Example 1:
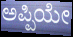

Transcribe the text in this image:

ಅಪ್ಪಿಯೇ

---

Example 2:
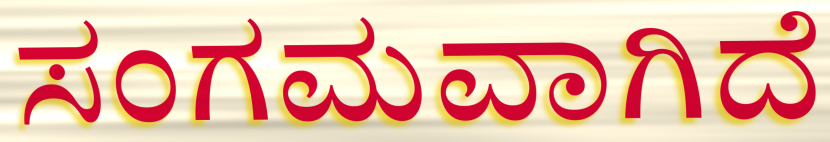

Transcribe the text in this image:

ಸಂಗಮವಾಗಿದೆ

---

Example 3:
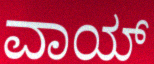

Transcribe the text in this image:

ವಾಯ್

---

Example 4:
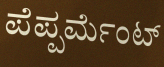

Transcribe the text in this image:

ಪೆಪ್ಪರ್ಮೆಂಟ್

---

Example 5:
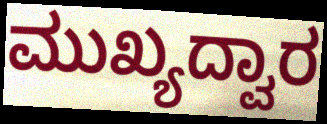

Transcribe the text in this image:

ಮುಖ್ಯದ್ವಾರ